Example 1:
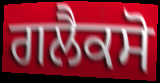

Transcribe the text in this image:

ਗਲੈਕਸੋ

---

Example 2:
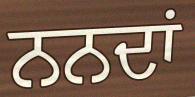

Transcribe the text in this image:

ਨਨਦਾਂ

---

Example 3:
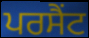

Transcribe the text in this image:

ਪਰਸੈਂਟ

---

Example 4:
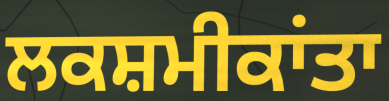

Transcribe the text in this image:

ਲਕਸ਼ਮੀਕਾਂਤਾ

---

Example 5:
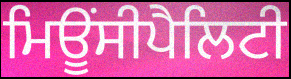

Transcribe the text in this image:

ਮਿਊਂਸੀਪੈਲਿਟੀ